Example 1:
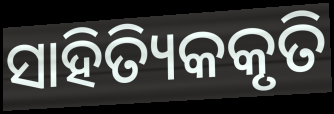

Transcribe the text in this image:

ସାହିତ୍ୟିକକୃତି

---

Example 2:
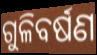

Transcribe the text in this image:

ଗୁଳିବର୍ଷଣ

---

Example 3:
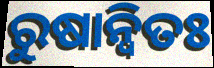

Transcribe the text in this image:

ରୁଷାନ୍ଵିତଃ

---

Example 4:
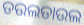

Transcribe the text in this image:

ଡଉଲଡାଉଲ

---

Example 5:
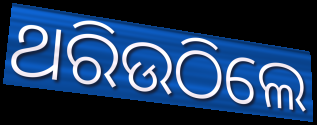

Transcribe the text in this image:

ଥରିଉଠିଲେ